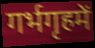
गर्भगृहमें